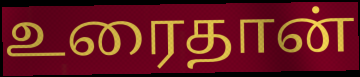
உரைதான்